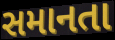
સમાનતા